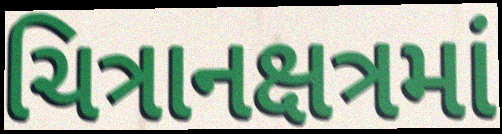
ચિત્રાનક્ષત્રમાં